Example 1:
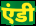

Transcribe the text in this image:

एंडी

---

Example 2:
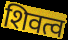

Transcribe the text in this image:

शिवत्व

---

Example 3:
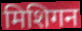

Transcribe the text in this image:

मिशिगन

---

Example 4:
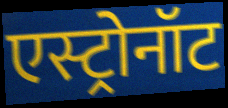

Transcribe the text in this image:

एस्‍ट्रोनॉट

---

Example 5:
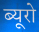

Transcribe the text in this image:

ब्यूरो